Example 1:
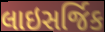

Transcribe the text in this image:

લાઇસર્જિક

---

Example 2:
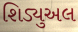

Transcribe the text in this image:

શિડ્યુઅલ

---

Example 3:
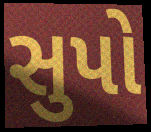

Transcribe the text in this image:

સુપો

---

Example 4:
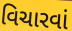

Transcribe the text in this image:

વિચારવાં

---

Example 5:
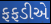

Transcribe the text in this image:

ફફડીએ